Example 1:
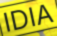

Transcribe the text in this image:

IDIA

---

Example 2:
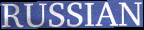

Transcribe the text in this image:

RUSSIAN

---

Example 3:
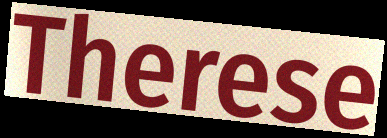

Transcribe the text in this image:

Therese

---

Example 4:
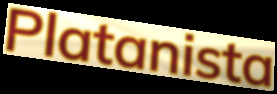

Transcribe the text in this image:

Platanista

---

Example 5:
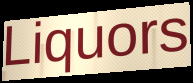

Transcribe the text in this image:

Liquors